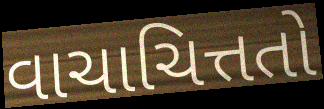
વાચાચિત્તતો